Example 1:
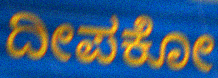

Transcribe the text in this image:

ದೀಪಕೋ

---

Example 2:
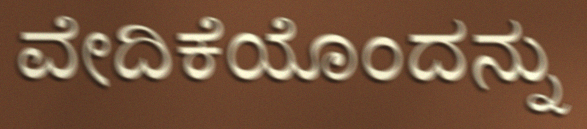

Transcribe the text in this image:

ವೇದಿಕೆಯೊಂದನ್ನು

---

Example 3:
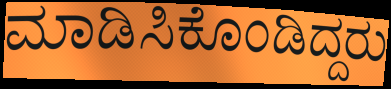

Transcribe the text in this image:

ಮಾಡಿಸಿಕೊಂಡಿದ್ದರು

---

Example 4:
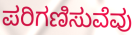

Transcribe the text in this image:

ಪರಿಗಣಿಸುವೆವು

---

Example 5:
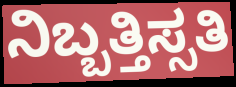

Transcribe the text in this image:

ನಿಬ್ಬತ್ತಿಸ್ಸತಿ